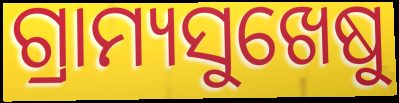
ଗ୍ରାମ୍ୟସୁଖେଷୁ